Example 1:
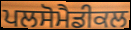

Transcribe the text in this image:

ਪਲਸੋਮੈਡੀਕਲ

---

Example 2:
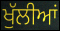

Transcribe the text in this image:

ਖੁੱਲੀਆਂ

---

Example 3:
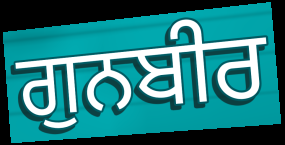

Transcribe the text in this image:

ਗੁਨਬੀਰ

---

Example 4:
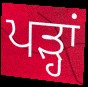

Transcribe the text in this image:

ਪੜ੍ਹਾਂ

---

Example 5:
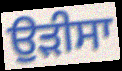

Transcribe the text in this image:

ਉਡ਼ੀਸਾ